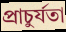
প্রাচুর্যতা